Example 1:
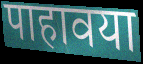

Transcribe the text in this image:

पाहावया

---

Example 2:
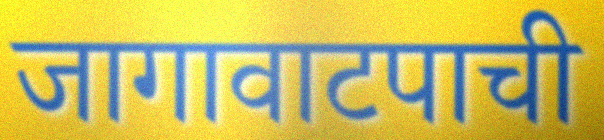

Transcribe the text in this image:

जागावाटपाची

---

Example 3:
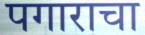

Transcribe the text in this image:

पगाराचा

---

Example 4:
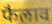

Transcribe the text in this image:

फैलाव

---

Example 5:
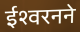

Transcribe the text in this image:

ईश्वरनने